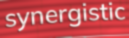
synergistic